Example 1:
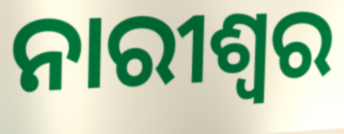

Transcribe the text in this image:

ନାରୀଶ୍ବର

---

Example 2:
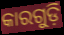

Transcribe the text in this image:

କାରଗୁଡ଼ି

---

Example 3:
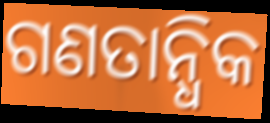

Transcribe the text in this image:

ଗଣତାନ୍ଧିକ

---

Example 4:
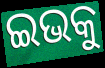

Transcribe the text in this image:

ଇଭକୁ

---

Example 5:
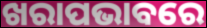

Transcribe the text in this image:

ଖରାପଭାବରେ